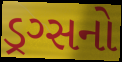
ડ્રગ્સનો